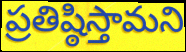
ప్రతిష్ఠిస్తామని